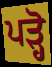
ਪੜ੍ਹੋ